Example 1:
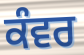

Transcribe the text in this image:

ਕੰਵਰ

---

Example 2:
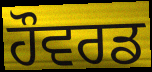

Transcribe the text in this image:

ਹੌਵਰਡ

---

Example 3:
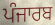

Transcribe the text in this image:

ਪੰਜਾਰਬ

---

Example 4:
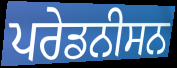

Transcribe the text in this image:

ਪਰੇਡਨੀਸਨ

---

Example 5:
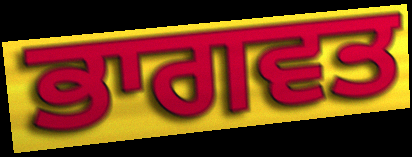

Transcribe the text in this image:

ਭਾਗਵਤ